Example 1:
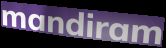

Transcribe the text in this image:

mandiram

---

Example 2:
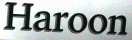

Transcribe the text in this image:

Haroon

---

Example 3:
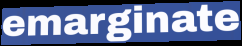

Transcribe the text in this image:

emarginate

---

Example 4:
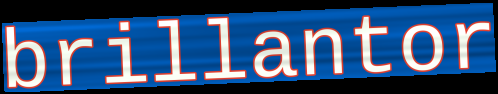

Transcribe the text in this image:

brillantor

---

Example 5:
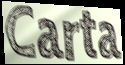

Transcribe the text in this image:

Carta